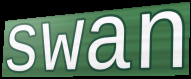
swan